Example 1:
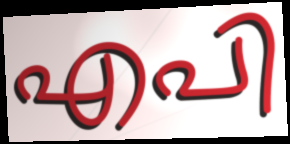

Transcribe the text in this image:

എപി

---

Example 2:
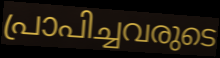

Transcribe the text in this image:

പ്രാപിച്ചവരുടെ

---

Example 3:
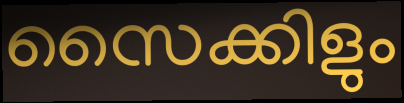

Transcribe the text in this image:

സൈക്കിളും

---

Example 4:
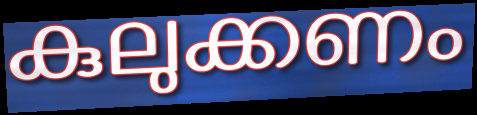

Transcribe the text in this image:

കുലുക്കണം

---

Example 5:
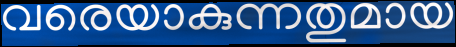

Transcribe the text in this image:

വരെയാകുന്നതുമായ